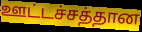
ஊட்டச்சத்தான